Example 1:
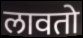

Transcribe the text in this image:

लावतो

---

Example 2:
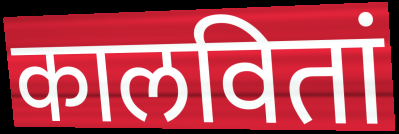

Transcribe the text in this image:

कालवितां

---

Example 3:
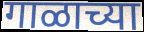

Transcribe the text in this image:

गाळाच्या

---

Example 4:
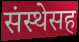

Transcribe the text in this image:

संस्थेसह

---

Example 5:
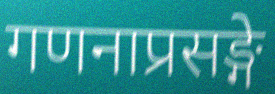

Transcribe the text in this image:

गणनाप्रसङ्गे